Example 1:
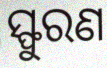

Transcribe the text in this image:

ସ୍ଫୁରଣ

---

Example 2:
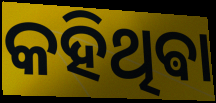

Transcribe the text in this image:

କହିଥିଵା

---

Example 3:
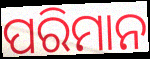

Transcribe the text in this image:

ପରିମାନ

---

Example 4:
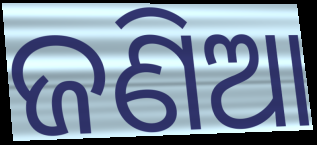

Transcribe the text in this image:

ଜଣିଆ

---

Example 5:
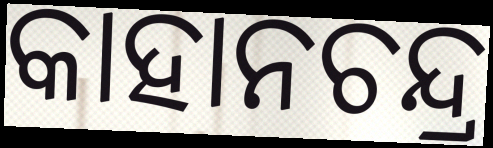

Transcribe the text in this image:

କାହାନଚନ୍ଦ୍ର